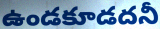
ఉండకూడదనీ